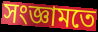
সংজ্ঞামতে